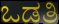
ಒಡತಿ